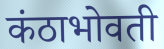
कंठाभोवती